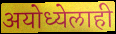
अयोध्येलाही